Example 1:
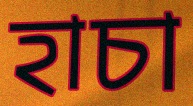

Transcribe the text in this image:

হাচা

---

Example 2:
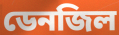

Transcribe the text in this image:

ডেনজিল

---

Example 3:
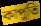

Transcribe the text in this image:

কাপুতি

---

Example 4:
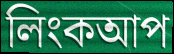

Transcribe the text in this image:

লিংকআপ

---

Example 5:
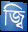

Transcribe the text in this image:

জ্বি